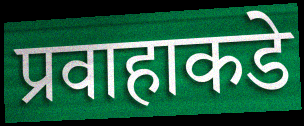
प्रवाहाकडे